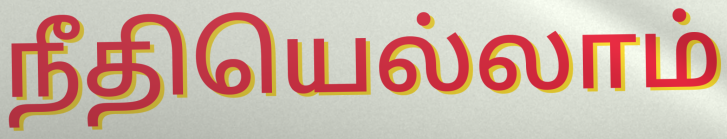
நீதியெல்லாம்